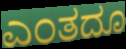
ಎಂತದೂ